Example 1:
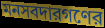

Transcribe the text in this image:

মনসবদারগণের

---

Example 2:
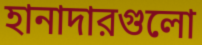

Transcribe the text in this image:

হানাদারগুলো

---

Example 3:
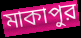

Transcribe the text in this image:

মাকাপুর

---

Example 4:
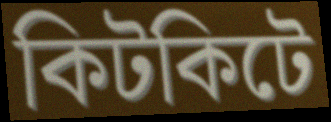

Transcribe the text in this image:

কিটকিটে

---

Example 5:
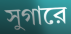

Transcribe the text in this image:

সুগারে